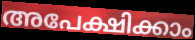
അപേക്ഷിക്കാം